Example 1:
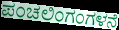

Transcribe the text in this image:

ಪಂಚಲಿಂಗಂಗಳನೆ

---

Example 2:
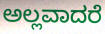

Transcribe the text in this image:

ಅಲ್ಲವಾದರೆ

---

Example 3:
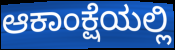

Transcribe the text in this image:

ಆಕಾಂಕ್ಷೆಯಲ್ಲಿ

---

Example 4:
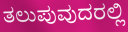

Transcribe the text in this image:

ತಲುಪುವುದರಲ್ಲಿ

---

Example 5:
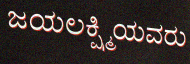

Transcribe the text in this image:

ಜಯಲಕ್ಷ್ಮಿಯವರು